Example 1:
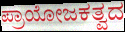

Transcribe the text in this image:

ಪ್ರಾಯೋಜಕತ್ವದ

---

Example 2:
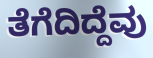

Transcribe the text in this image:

ತೆಗೆದಿದ್ದೆವು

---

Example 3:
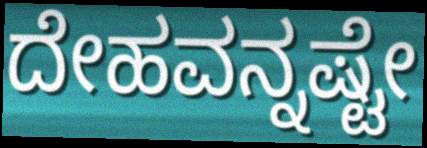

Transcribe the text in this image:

ದೇಹವನ್ನಷ್ಟೇ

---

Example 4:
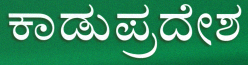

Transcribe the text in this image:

ಕಾಡುಪ್ರದೇಶ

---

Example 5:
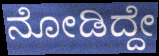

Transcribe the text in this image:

ನೋಡಿದ್ದೇ